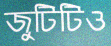
জুটিটিও